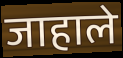
जाहाले